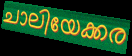
ചാലിയേക്കര